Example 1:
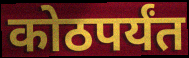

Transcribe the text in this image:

कोठपर्यंत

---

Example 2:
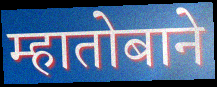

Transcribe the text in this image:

म्हातोबाने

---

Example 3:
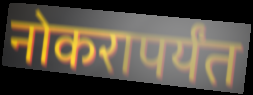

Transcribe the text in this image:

नोकरापर्यंत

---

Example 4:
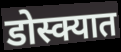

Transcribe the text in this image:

डोस्क्यात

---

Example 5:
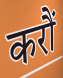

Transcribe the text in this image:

करौं